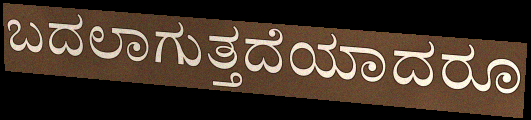
ಬದಲಾಗುತ್ತದೆಯಾದರೂ